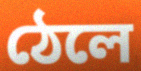
ঠেলে